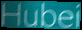
Hubei